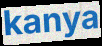
kanya